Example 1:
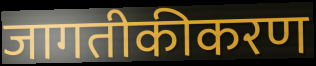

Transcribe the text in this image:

जागतीकीकरण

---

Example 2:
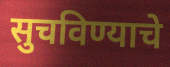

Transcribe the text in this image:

सुचविण्याचे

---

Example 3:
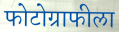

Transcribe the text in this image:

फोटोग्राफीला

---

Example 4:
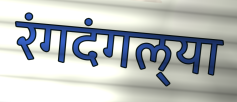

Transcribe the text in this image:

रंगदंगल्या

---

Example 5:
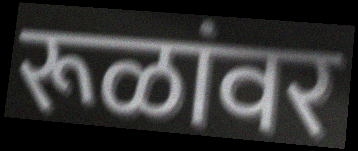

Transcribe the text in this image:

रूळांवर